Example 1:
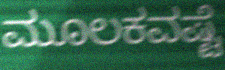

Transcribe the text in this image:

ಮೂಲಕವಷ್ಟೆ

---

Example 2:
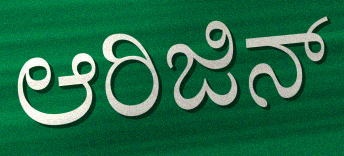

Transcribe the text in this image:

ಆರಿಜಿನ್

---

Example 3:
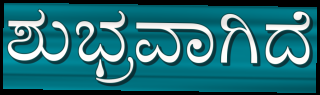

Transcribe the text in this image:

ಶುಭ್ರವಾಗಿದೆ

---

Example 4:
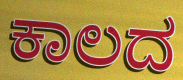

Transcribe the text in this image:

ಕಾಲದ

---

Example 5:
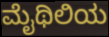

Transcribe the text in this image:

ಮೈಥಿಲಿಯ